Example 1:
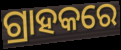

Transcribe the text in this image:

ଗ୍ରାହକରେ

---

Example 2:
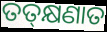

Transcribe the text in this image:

ତତ୍‍କ୍ଷଣାତ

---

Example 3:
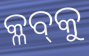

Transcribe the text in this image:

କ୍ଳବ୍‌କୁ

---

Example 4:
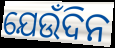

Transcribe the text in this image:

ଯେଉଁଦିନ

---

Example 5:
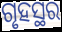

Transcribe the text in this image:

ଗୃହସ୍ଥର